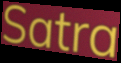
Satra